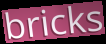
bricks